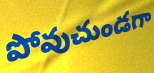
పోవుచుండగా